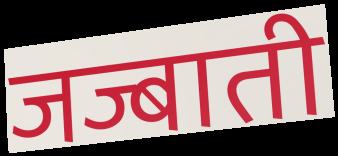
जज्‍बाती